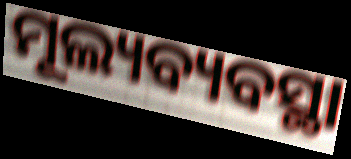
ମୂଲ୍ୟବ୍ୟବସ୍ଥା